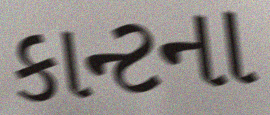
કાન્ટના